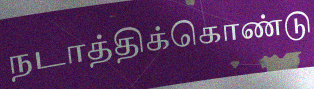
நடாத்திக்கொண்டு